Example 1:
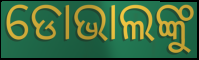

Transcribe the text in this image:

ଡୋଭାଲଙ୍କୁ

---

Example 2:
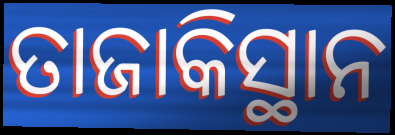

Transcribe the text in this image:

ତାଜାକିସ୍ଥାନ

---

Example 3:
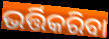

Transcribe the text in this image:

ଭର୍ତ୍ତିକରିବା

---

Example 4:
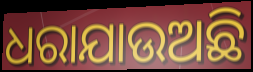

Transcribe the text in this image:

ଧରାଯାଉଅଛି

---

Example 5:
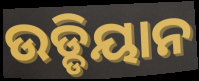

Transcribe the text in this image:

ଉଡ୍ଡିୟାନ